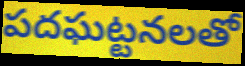
పదఘట్టనలతో